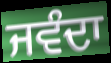
ਜਵੰਦਾ